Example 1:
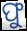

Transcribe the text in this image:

ଫୁ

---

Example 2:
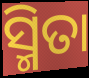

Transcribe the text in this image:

ସ୍ମିତା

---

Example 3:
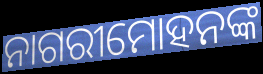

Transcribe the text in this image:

ନାଗରୀମୋହନଙ୍କ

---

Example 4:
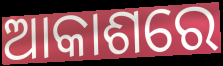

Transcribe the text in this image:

ଆକାଶରେ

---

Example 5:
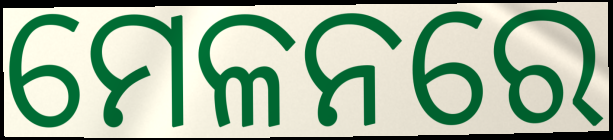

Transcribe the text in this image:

ମେଳନରେ